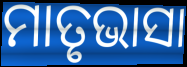
ମାତୃଭାସା